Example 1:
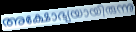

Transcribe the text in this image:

അക്ഷോഭ്യയായിരുന്നു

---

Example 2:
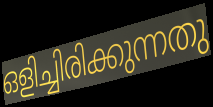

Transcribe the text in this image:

ഒളിച്ചിരിക്കുന്നതു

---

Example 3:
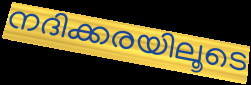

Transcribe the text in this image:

നദിക്കരയിലൂടെ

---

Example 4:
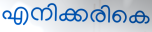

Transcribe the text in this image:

എനിക്കരികെ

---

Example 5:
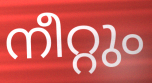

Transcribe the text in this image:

നീറ്റും